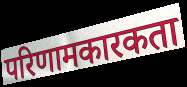
परिणामकारकता